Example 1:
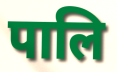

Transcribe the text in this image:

पालि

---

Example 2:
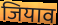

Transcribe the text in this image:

जियाव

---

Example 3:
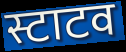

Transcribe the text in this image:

स्टाटव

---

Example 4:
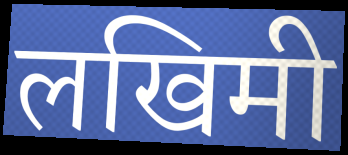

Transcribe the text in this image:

लखिमी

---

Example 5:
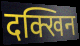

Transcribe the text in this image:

दक्खिन